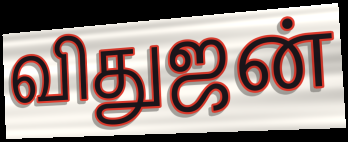
விதுஜன்